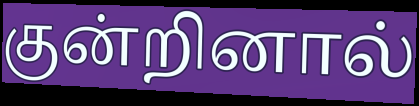
குன்றினால்